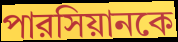
পারসিয়ানকে